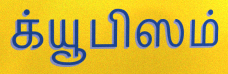
க்யூபிஸம்